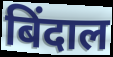
बिंदाल